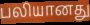
பலியானது